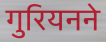
गुरियनने